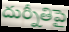
దుర్నీతిపై